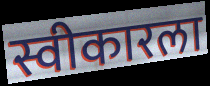
स्वीकारला